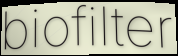
biofilter